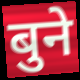
बुने